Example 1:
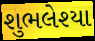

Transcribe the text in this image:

શુભલેશ્યા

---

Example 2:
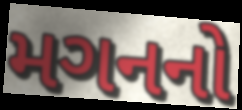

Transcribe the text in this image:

મગનનો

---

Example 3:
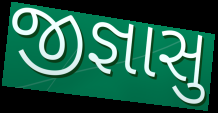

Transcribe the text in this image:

જીજ્ઞાસુ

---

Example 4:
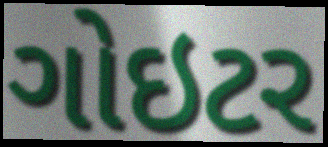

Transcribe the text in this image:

ગોઇટર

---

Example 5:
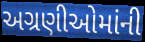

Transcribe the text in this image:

અગ્રણીઓમાંની